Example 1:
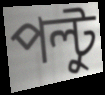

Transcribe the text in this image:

পল্টু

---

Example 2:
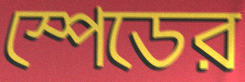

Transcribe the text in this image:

স্পেডের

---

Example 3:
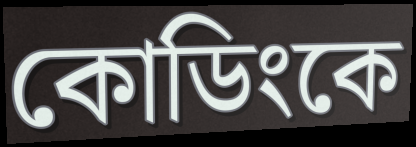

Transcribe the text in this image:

কোডিংকে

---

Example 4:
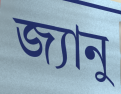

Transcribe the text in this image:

জ্যানু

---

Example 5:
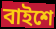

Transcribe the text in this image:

বাইশে